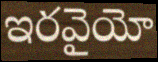
ఇరవైయో